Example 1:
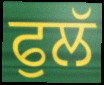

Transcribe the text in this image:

ਫੁਲੱ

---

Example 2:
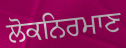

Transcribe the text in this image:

ਲੋਕਨਿਰਮਾਣ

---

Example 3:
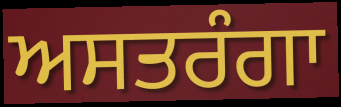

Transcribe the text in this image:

ਅਸਤਰੰਗਾ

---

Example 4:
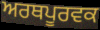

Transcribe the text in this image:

ਅਰਥਪੂਰਵਕ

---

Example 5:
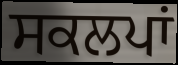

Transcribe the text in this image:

ਸਕਲਪਾਂ